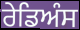
ਰੇਡਿਅੰਸ